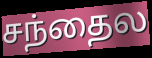
சந்தைல